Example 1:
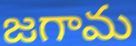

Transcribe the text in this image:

జగామ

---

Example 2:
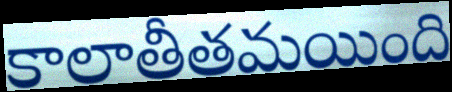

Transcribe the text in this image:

కాలాతీతమయింది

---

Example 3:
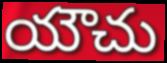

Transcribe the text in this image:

యౌచు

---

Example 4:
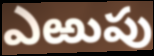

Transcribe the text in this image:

ఎఱుపు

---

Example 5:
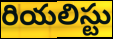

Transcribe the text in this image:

రియలిస్టు